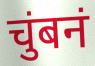
चुंबनं